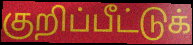
குறிப்பீட்டுக்